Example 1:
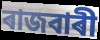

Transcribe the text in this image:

ৰাজবাৰী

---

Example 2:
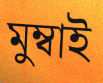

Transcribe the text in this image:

মুম্বাই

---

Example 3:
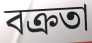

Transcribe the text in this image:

বক্ৰতা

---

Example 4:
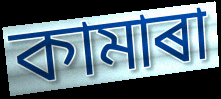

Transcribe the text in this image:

কামাৰা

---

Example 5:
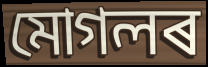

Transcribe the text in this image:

মোগলৰ